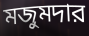
মজুমদার